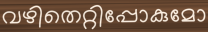
വഴിതെറ്റിപ്പോകുമോ